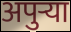
अपुर्‍या